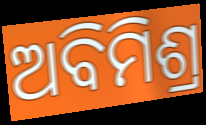
ଅବିମିଶ୍ର